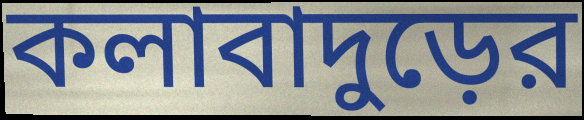
কলাবাদুড়ের